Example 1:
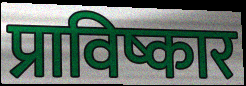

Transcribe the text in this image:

प्राविष्कार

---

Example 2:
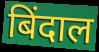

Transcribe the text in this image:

बिंदाल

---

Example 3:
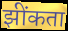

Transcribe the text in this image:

झींकता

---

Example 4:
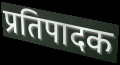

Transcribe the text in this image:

प्रतिपादक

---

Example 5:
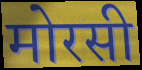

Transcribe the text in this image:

मोरसी